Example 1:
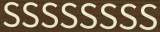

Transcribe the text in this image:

SSSSSSSS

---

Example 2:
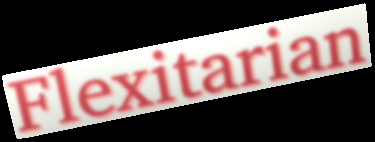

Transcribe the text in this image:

Flexitarian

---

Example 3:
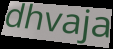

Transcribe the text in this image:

dhvaja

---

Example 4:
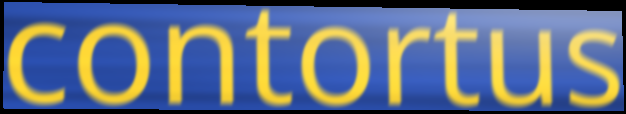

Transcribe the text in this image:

contortus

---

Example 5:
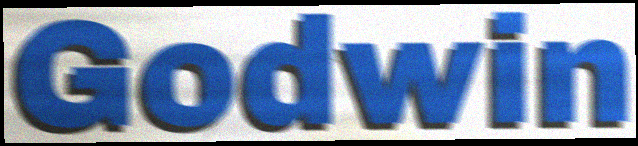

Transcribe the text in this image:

Godwin